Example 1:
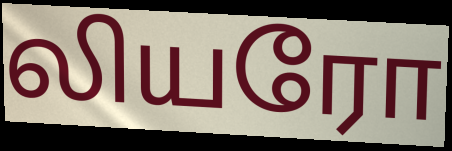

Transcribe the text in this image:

லியரோ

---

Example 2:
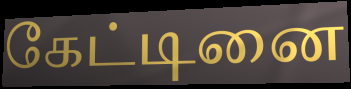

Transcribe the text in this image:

கேட்டினை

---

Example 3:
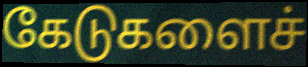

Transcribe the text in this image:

கேடுகளைச்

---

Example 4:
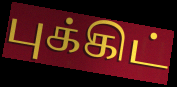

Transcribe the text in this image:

புக்கிட்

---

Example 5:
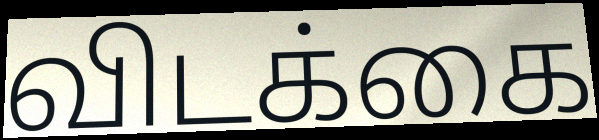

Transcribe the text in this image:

விடக்கை